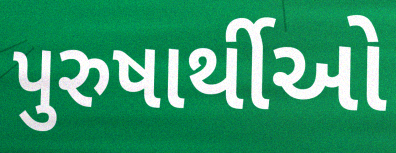
પુરુષાર્થીઓ